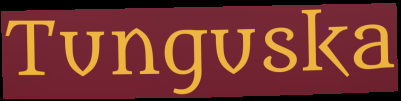
Tunguska